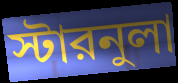
স্টারনুলা